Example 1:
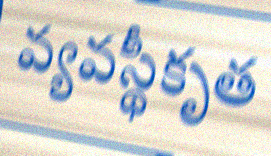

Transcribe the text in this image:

వ్యవస్థీకృత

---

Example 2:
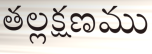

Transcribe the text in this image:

తల్లక్షణము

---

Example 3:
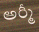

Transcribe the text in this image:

అర్మీ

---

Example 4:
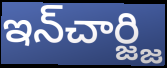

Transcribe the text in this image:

ఇన్‌చార్జ్జి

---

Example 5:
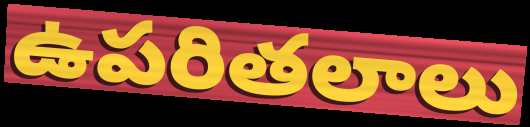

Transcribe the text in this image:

ఉపరితలాలు